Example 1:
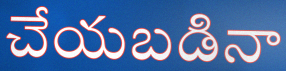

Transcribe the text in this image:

చేయబడినా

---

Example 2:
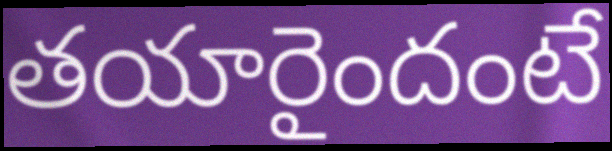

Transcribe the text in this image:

తయారైందంటే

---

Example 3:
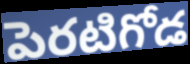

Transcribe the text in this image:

పెరటిగోడ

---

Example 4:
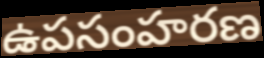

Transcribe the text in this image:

ఉపసంహరణ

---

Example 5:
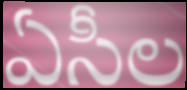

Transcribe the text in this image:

ఏసీల